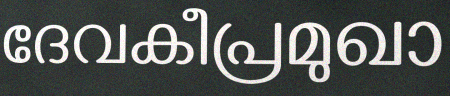
ദേവകീപ്രമുഖാ